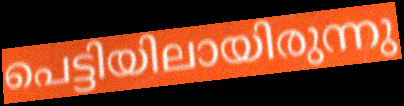
പെട്ടിയിലായിരുന്നു